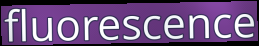
fluorescence